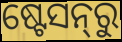
ଷ୍ଟେସନ୍‌ରୁ